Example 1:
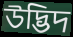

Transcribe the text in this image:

উদ্ভিদ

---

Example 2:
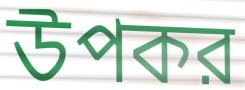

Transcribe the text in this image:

উপকর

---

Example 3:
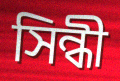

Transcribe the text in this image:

সিন্ধী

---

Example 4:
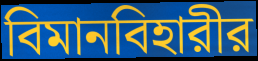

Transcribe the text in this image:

বিমানবিহারীর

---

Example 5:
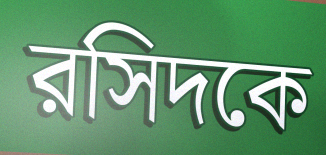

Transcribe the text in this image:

রসিদকে